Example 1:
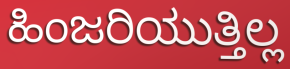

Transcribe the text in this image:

ಹಿಂಜರಿಯುತ್ತಿಲ್ಲ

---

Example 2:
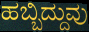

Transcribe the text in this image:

ಹಬ್ಬಿದ್ದುವು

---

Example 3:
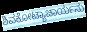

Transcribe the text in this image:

ಶಿವಕೋಟ್ಯಾಚಾರ್ಯನು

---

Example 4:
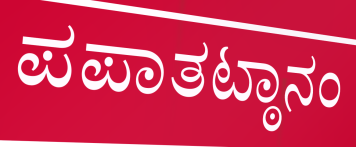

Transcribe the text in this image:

ಪಪಾತಟ್ಠಾನಂ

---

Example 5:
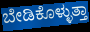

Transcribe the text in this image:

ಬೇಡಿಕೊಳ್ಳುತ್ತಾ